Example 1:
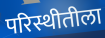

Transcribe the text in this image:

परिस्थीतीला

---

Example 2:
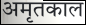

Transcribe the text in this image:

अमृतकाल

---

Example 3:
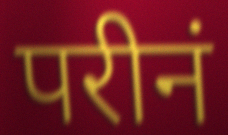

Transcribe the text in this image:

परीनं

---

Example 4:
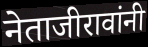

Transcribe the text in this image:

नेताजीरावांनी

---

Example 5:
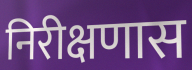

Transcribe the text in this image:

निरीक्षणास